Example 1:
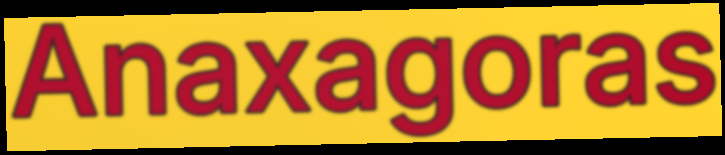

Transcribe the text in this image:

Anaxagoras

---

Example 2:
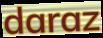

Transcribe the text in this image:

daraz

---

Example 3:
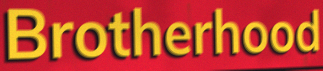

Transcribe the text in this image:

Brotherhood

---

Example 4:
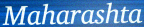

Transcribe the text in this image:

Maharashta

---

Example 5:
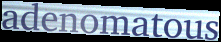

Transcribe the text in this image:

adenomatous